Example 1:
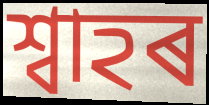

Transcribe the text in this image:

শ্বাহৰ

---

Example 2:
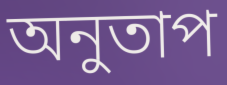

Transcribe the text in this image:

অনুতাপ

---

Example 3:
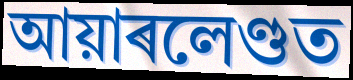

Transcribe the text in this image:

আয়াৰলেণ্ডত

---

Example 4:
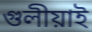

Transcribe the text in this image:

গুলীয়াই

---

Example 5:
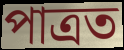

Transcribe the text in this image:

পাত্ৰত